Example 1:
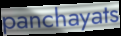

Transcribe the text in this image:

panchayats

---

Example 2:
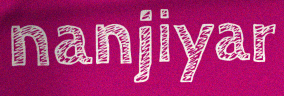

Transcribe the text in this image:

nanjiyar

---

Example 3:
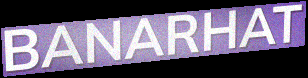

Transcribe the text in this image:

BANARHAT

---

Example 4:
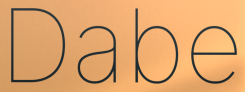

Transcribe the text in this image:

Dabe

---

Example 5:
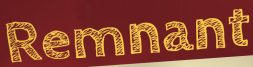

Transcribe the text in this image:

Remnant